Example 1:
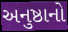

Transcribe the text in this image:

અનુષ્ઠાનો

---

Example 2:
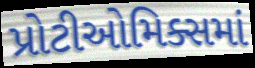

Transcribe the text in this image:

પ્રોટીઓમિક્સમાં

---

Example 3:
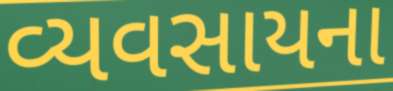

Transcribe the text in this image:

વ્યવસાયના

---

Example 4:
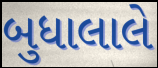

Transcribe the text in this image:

બુધાલાલે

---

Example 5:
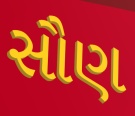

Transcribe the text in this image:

સૌણ